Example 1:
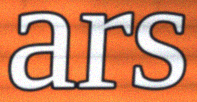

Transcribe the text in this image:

ars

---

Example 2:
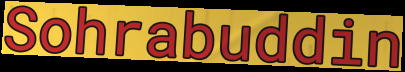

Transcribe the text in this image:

Sohrabuddin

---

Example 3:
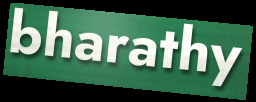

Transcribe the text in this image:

bharathy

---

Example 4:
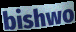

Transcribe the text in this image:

bishwo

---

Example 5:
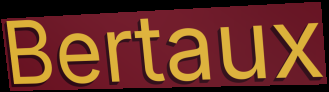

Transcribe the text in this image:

Bertaux